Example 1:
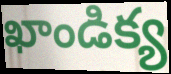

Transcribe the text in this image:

ఖాండిక్య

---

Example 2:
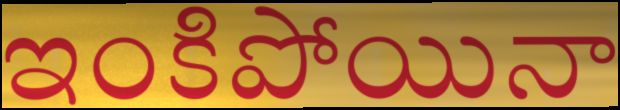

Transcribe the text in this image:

ఇంకిపోయినా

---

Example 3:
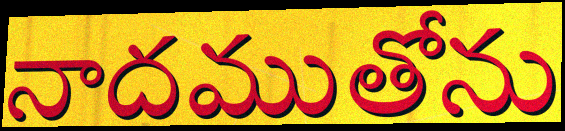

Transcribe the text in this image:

నాదముతోను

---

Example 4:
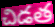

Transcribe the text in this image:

చిడత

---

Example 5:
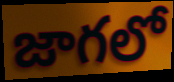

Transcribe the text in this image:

జాగలో